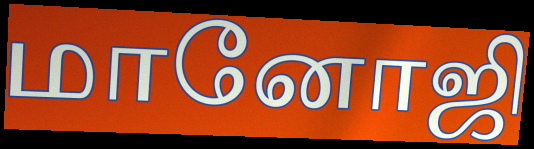
மானோஜி